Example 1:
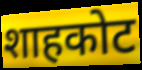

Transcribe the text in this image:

शाहकोट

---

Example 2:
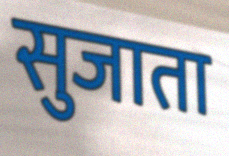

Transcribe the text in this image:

सुजाता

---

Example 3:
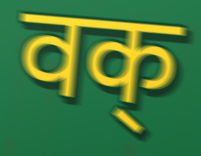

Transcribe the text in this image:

वक्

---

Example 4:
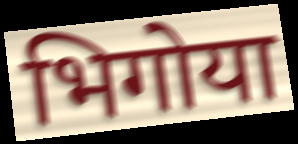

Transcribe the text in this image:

भिगोया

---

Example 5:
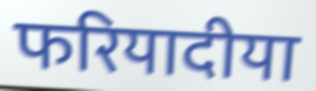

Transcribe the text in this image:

फरियादीया